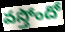
వస్తోందో